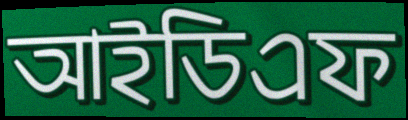
আইডিএফ